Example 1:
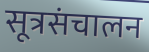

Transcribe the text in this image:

सूत्रसंचालन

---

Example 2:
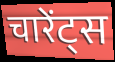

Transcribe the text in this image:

चारेंट्स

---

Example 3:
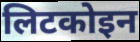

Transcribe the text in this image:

लिटकोइन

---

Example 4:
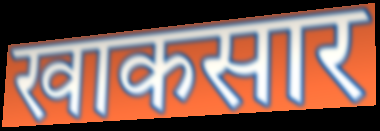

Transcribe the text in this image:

खाकसार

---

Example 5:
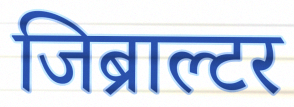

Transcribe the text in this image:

जिब्राल्टर